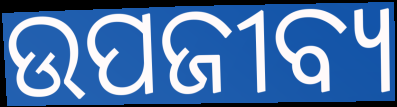
ଉପଜୀବ୍ୟ